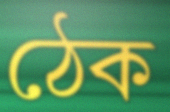
ঠেক